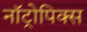
नॉट्रोपिक्स